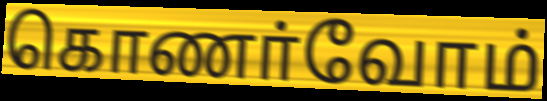
கொணர்வோம்